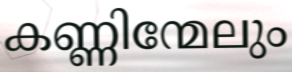
കണ്ണിന്മേലും